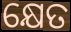
କ୍ଷେତ